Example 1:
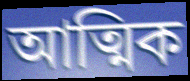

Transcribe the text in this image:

আত্মিক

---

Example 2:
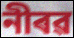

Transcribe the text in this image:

নীৰৱ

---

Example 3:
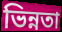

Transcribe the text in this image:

ভিন্নতা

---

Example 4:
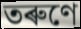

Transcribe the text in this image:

তৰুণে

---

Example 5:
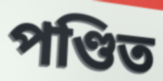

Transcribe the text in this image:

পণ্ডিত